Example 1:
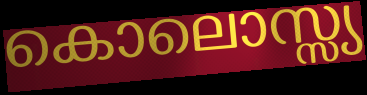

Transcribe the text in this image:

കൊലൊസ്സ്യ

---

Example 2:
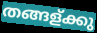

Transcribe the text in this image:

തങ്ങള്ക്കു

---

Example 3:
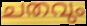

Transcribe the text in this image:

ചതവും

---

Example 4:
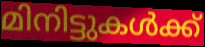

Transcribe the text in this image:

മിനിട്ടുകൾക്ക്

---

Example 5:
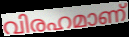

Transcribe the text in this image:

വിരഹമാണ്